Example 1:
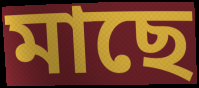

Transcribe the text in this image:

মাছে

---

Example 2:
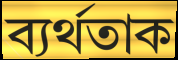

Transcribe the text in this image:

ব্যৰ্থতাক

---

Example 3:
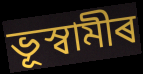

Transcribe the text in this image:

ভূস্বামীৰ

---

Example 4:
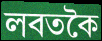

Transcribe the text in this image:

লবতকৈ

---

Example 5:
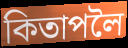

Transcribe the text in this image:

কিতাপলৈ